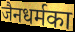
जैनधर्मका